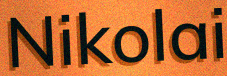
Nikolai